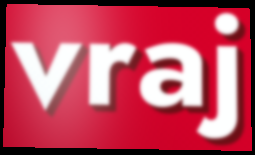
vraj